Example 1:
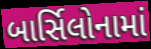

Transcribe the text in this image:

બાર્સિલોનામાં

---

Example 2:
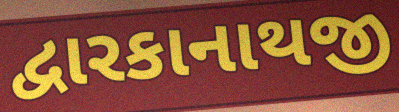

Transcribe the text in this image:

દ્વારકાનાથજી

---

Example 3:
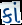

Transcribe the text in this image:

કાં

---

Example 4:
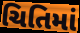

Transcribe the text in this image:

ચિતિમાં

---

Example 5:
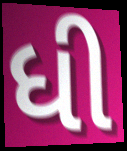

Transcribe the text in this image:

ધી